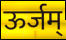
ऊर्जम्